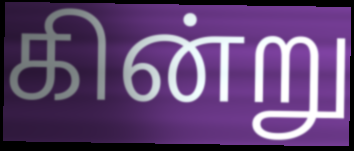
கின்று